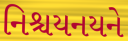
નિશ્ચયનયને